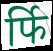
र्फि